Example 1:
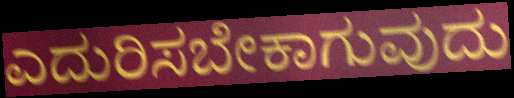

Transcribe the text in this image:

ಎದುರಿಸಬೇಕಾಗುವುದು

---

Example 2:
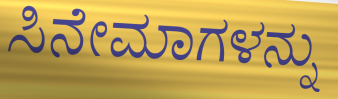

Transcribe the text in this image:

ಸಿನೇಮಾಗಳನ್ನು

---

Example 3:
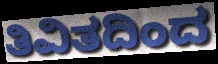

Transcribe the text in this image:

ತಿವಿತದಿಂದ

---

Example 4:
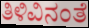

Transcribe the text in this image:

ತಿಳಿವಿನಂತೆ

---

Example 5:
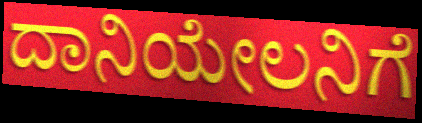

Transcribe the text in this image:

ದಾನಿಯೇಲನಿಗೆ